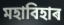
মহাবিহাৰ